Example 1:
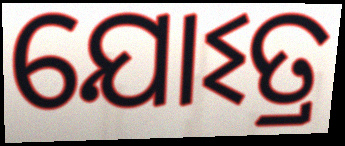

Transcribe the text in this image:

ଯୋଽତ୍ର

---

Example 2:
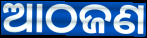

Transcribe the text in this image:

ଆଠଜଣ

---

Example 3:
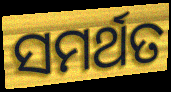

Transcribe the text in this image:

ସମର୍ଥତ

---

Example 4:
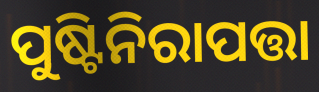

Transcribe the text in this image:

ପୁଷ୍ଟିନିରାପତ୍ତା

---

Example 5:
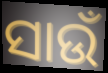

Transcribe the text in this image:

ସାଉଁ